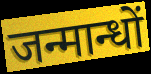
जन्मान्धों